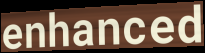
enhanced